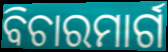
ବିଚାରମାର୍ଗ